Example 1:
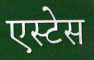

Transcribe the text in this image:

एस्टेस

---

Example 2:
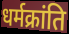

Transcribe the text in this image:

धर्मक्रांति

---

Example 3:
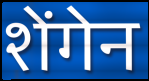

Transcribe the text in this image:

शेंगेन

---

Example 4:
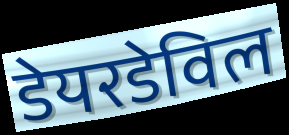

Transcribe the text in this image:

डेयरडेविल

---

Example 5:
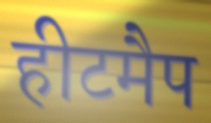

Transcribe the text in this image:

हीटमैप